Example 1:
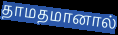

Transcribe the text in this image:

தாமதமானால்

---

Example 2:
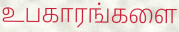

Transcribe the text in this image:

உபகாரங்களை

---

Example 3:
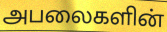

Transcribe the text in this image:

அபலைகளின்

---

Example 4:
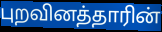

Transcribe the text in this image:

புறவினத்தாரின்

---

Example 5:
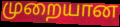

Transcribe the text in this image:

முறையான